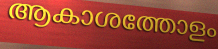
ആകാശത്തോളം